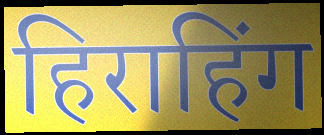
हिराहिंग